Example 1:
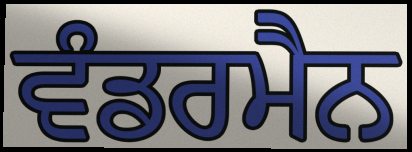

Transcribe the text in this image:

ਵੰਡਰਮੈਨ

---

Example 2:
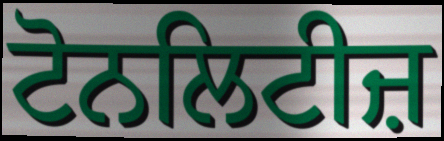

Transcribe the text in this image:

ਟੋਨਲਿਟੀਜ਼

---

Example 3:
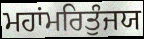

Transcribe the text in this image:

ਮਹਾਂਮਰਿਤੁੰਜਯ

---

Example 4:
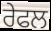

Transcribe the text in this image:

ਰੇਫਲ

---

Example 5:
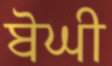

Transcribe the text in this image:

ਬੋਘੀ